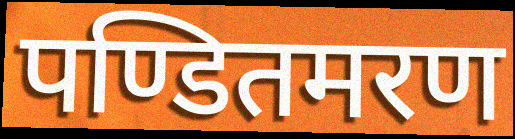
पण्डितमरण